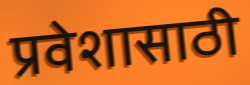
प्रवेशासाठी